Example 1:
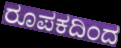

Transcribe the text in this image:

ರೂಪಕದಿಂದ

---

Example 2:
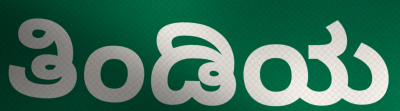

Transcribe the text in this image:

ತಿಂಡಿಯ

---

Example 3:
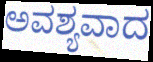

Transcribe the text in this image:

ಅವಶ್ಯವಾದ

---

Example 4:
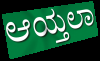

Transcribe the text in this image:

ಆಯ್ತಲಾ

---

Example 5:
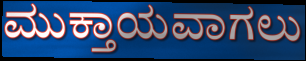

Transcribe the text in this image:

ಮುಕ್ತಾಯವಾಗಲು